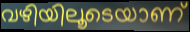
വഴിയിലൂടെയാണ്